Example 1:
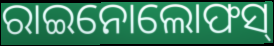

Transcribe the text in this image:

ରାଇନୋଲୋଫସ୍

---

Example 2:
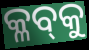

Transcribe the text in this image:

କ୍ଳବ୍‍କୁ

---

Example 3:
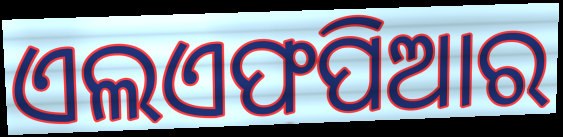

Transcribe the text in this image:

ଏଲଏଫପିଆର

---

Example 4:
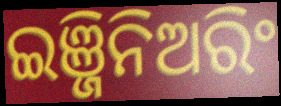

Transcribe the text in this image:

ଇଞ୍ଜିନିଅରିଂ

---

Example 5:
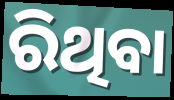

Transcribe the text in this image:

ରିଥିବା